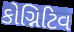
કોગ્નિટિવ